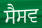
ਸੈਸਵ